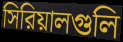
সিরিয়ালগুলি